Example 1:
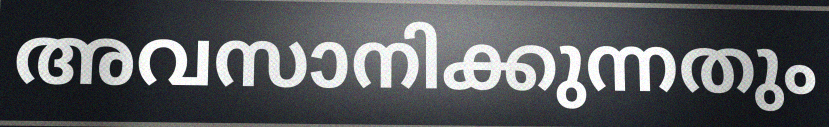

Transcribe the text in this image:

അവസാനിക്കുന്നതും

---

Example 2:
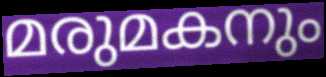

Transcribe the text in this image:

മരുമകനും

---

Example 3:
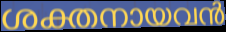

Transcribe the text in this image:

ശക്തനായവൻ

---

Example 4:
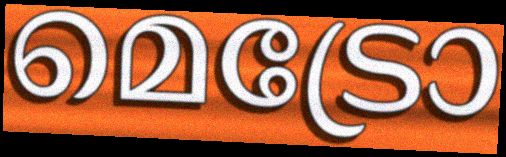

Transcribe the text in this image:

മെട്രോ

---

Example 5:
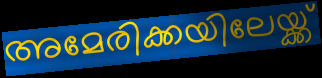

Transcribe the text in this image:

അമേരിക്കയിലേയ്ക്ക്